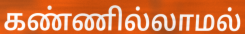
கண்ணில்லாமல்